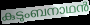
കുടുംബനാഥൻ